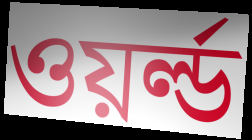
ওয়র্ল্ড